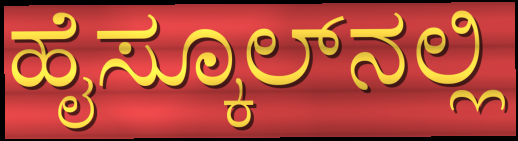
ಹೈಸ್ಕೂಲ್‍ನಲ್ಲಿ